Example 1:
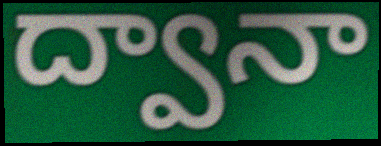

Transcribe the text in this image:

ద్వానా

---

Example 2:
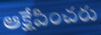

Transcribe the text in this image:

ఆక్షేపించరు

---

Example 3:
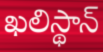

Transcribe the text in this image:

ఖలిస్థాన్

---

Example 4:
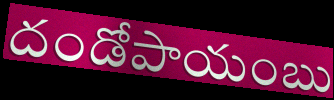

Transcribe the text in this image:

దండోపాయంబు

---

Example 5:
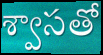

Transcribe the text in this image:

శ్వాసతో